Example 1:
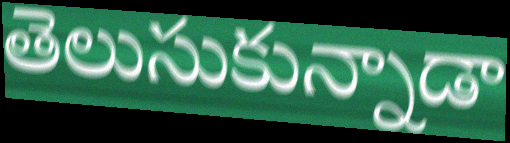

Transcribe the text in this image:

తెలుసుకున్నాడా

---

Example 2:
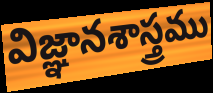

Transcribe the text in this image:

విజ్ఞానశాస్త్రము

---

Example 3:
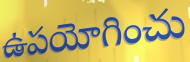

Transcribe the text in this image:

ఉపయోగించు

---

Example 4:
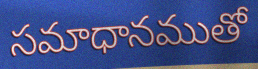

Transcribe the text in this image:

సమాధానముతో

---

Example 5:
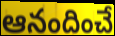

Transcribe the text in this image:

ఆనందించే